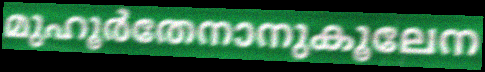
മുഹൂർതേനാനുകൂലേന